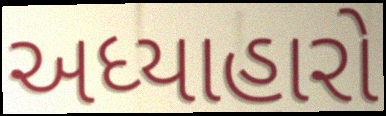
અધ્યાહારો